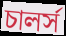
চালর্স